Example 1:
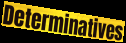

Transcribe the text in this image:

Determinatives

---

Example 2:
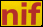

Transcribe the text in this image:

nif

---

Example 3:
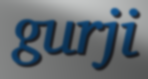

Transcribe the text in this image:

gurji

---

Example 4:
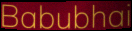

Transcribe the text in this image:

Babubhai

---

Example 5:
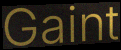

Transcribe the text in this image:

Gaint